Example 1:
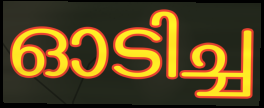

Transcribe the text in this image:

ഓടിച്ച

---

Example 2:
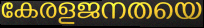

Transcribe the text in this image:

കേരളജനതയെ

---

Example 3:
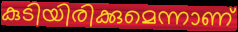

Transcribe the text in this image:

കുടിയിരിക്കുമെന്നാണ്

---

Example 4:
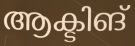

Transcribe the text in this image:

ആക്ടിങ്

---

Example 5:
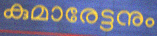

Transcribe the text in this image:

കുമാരേട്ടനും